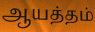
ஆயத்தம்